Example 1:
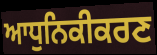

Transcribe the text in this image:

ਆਧੁਨਿਕੀਕਰਣ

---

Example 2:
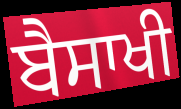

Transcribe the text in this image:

ਬੈਸਾਖੀ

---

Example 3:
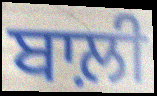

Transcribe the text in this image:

ਬਾਲ਼ੀ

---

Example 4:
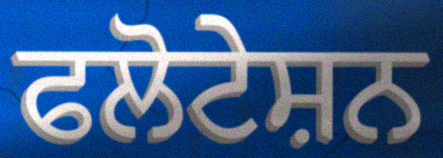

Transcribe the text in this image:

ਫਲੋਟੇਸ਼ਨ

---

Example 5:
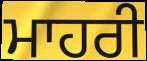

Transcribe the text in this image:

ਮਾਹਰੀ